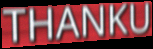
THANKU